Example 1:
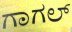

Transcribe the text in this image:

ಗಾಗಲ್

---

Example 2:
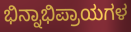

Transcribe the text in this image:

ಭಿನ್ನಾಭಿಪ್ರಾಯಗಳ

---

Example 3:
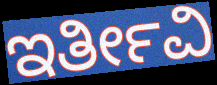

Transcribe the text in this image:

ಇರ್ತೀವಿ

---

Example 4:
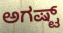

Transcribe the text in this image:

ಅಗಷ್ಟ್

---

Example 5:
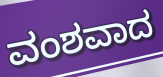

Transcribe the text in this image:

ವಂಶವಾದ